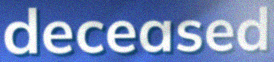
deceased